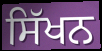
ਸਿੱਖਨ